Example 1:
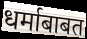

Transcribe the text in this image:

धर्माबाबत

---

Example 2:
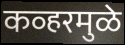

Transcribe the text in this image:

कव्हरमुळे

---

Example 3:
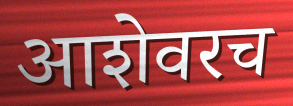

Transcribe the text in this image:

आशेवरच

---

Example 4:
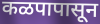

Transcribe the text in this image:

कळपापासून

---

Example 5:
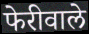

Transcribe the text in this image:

फेरीवाले